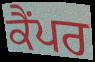
ਕੈਂਪਰ